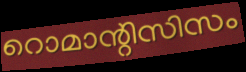
റൊമാന്റിസിസം